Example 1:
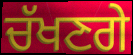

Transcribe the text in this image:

ਚੱਖਣਗੇ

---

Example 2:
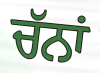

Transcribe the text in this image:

ਚੱਨਾਂ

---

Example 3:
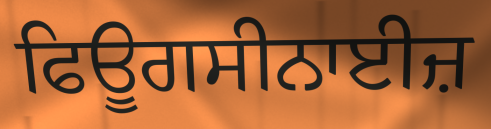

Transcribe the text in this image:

ਫਿਊਗਸੀਨਾਈਜ਼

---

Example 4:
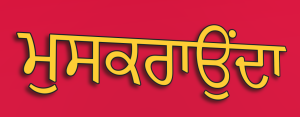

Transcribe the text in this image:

ਮੁਸਕਰਾਉਂਦਾ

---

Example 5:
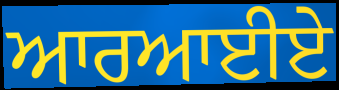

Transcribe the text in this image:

ਆਰਆਈਏ